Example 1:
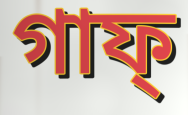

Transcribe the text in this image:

গাফ্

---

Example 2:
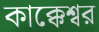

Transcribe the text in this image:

কাক্কেশ্বর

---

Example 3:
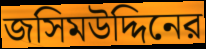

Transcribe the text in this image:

জসিমউদ্দিনের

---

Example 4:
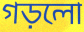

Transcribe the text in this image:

গড়লো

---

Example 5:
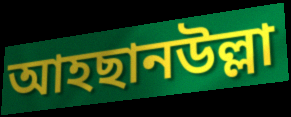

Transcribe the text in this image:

আহছানউল্লা